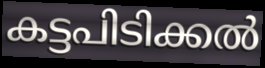
കട്ടപിടിക്കൽ